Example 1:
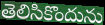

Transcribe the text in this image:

తెలిసికొందును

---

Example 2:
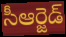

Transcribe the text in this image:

సీఆర్జెడ్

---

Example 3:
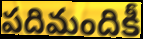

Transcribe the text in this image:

పదిమందికీ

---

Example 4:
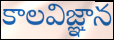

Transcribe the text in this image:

కాలవిజ్ఞాన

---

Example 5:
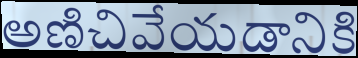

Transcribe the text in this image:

అణిచివేయడానికి